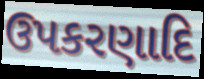
ઉપકરણાદિ